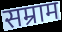
सम्राम